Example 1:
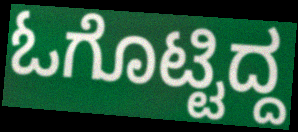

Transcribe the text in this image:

ಓಗೊಟ್ಟಿದ್ದ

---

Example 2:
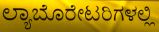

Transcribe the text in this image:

ಲ್ಯಾಬೊರೇಟರಿಗಳಲ್ಲಿ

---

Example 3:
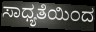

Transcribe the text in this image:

ಸಾಧ್ಯತೆಯಿಂದ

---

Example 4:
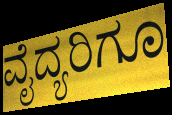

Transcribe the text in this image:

ವೈದ್ಯರಿಗೂ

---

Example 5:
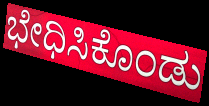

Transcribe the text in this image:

ಭೇಧಿಸಿಕೊಂಡು